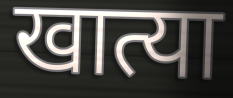
खात्या